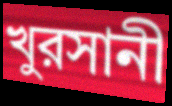
খুরসানী